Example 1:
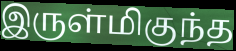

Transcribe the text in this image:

இருள்மிகுந்த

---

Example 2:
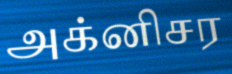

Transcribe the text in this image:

அக்னிசர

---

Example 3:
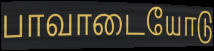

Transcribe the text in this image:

பாவாடையோடு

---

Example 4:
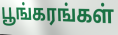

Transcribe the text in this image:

பூங்கரங்கள்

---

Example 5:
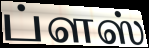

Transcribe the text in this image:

ப்ளஸ்